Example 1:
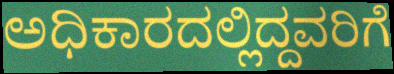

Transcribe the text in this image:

ಅಧಿಕಾರದಲ್ಲಿದ್ದವರಿಗೆ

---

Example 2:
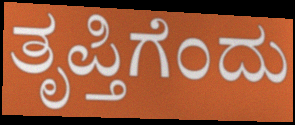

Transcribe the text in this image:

ತೃಪ್ತಿಗೆಂದು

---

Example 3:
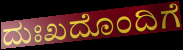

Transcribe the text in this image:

ದುಃಖದೊಂದಿಗೆ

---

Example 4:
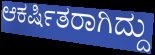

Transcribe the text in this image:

ಆಕರ್ಷಿತರಾಗಿದ್ದು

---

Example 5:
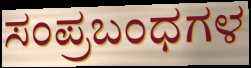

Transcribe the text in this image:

ಸಂಪ್ರಬಂಧಗಳ